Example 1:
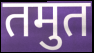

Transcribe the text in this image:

तमुत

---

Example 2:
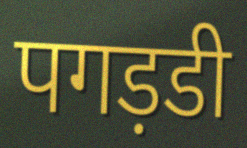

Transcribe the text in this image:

पगड़डी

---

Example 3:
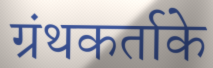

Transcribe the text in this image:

ग्रंथकर्ताके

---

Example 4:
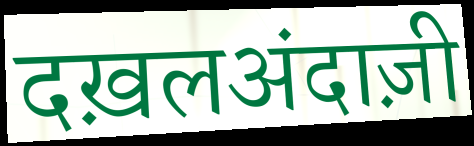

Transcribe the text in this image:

दख़लअंदाज़ी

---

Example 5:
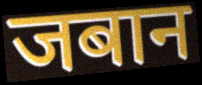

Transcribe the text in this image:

जबान